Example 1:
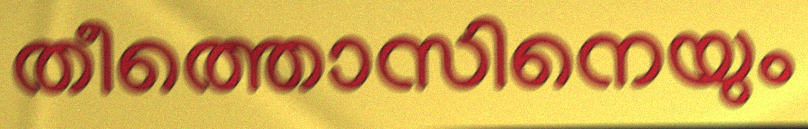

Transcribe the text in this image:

തീത്തൊസിനെയും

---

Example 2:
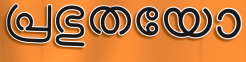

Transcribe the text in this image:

പ്രഭുതയോ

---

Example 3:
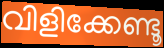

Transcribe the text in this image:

വിളിക്കേണ്ടൂ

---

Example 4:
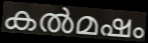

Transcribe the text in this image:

കൽമഷം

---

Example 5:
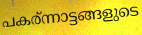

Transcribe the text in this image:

പകര്ന്നാട്ടങ്ങളുടെ